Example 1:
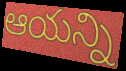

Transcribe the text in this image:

ఆయన్ని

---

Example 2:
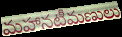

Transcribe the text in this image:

మహానటీమణులు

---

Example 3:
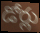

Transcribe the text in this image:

డోర్లు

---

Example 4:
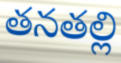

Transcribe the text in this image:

తనతల్లి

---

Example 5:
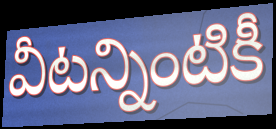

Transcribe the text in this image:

వీటన్నింటికీ